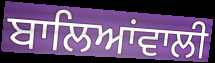
ਬਾਲਿਆਂਵਾਲੀ